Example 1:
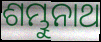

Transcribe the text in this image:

ଶମ୍ଭୁନାଥ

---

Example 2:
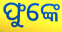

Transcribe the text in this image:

ଫୁଙ୍କେ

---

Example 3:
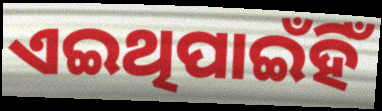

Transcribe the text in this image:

ଏଇଥିପାଇଁହିଁ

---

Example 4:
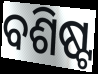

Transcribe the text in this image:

ବଶିଷ୍ଟ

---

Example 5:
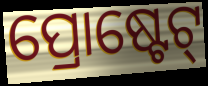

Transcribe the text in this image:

ପ୍ରୋଷ୍ଟେଟ୍